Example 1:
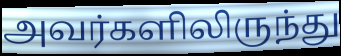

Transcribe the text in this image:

அவர்களிலிருந்து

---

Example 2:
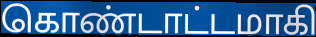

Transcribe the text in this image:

கொண்டாட்டமாகி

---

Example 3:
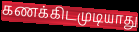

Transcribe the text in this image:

கணக்கிடமுடியாது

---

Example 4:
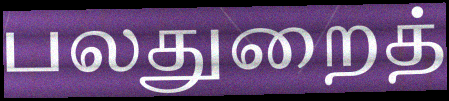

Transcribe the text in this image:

பலதுறைத்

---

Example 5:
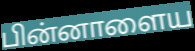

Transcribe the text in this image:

பின்னாளைய